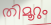
തിമൂറും